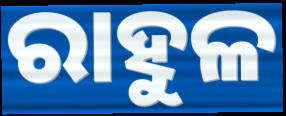
ରାହୁଳ